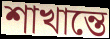
শাখান্তে